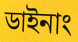
ডাইনাং